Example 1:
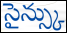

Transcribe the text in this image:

సైన్స్కు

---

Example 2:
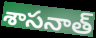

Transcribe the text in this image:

శాసనాత్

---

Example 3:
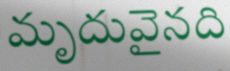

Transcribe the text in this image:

మృదువైనది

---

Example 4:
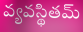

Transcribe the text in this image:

వ్యవస్థితమ్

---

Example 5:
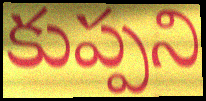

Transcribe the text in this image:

కుప్పని